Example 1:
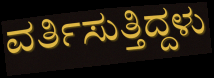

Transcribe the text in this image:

ವರ್ತಿಸುತ್ತಿದ್ದಳು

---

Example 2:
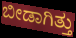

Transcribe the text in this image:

ಬೀಡಾಗಿತ್ತು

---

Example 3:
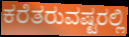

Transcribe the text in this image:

ಕರೆತರುವಷ್ಟರಲ್ಲಿ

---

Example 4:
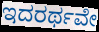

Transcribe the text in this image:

ಇದರರ್ಥವೇ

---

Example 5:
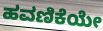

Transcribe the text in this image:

ಹವಣಿಕೆಯೇ